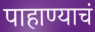
पाहाण्याचं